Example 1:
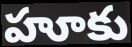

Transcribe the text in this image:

హూకు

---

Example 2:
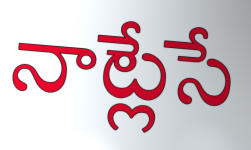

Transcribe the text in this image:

నాట్లేసే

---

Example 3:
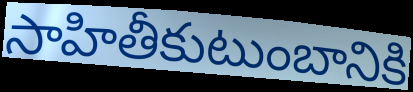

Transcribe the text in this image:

సాహితీకుటుంబానికి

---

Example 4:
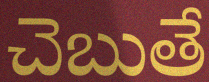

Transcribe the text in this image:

చెబుతే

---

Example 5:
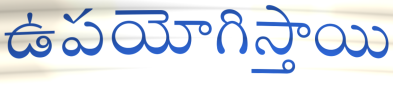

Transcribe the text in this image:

ఉపయోగిస్తాయి